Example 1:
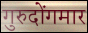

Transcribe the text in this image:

गुरुदोंगमार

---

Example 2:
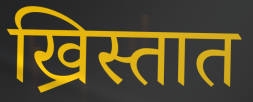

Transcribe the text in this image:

ख्रिस्तात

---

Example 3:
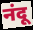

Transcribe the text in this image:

नंदू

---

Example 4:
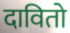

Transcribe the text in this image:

दावितो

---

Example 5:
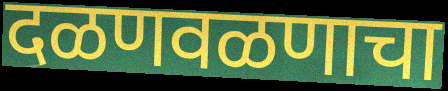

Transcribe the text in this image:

दळणवळणाचा